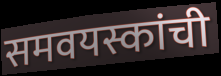
समवयस्कांची